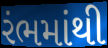
રંભમાંથી